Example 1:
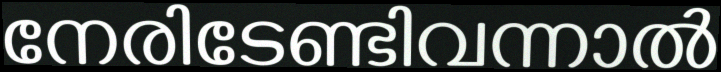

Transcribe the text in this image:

നേരിടേണ്ടിവന്നാൽ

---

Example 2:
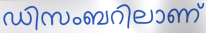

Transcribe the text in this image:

ഡിസംബറിലാണ്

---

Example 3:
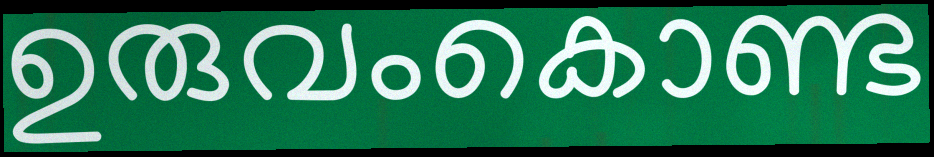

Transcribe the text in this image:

ഉരുവംകൊണ്ട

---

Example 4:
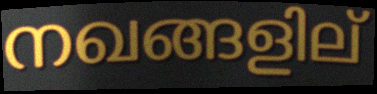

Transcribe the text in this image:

നഖങ്ങളില്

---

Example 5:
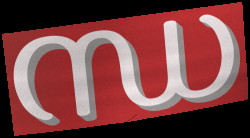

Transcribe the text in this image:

ന്ധ